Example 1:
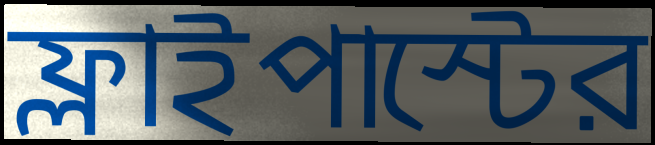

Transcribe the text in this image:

ফ্লাইপাস্টের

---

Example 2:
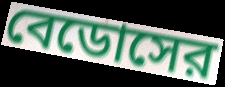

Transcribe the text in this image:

বেডোসের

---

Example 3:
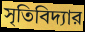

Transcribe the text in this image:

সৃতিবিদ্যার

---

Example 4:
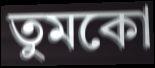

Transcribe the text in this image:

তুমকো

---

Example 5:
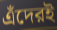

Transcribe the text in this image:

এঁদেরই